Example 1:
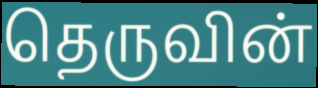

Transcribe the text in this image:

தெருவின்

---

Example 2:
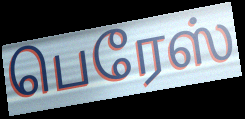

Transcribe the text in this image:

பெரேஸ்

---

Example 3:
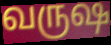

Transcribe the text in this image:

வருஷ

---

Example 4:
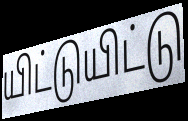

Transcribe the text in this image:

யிட்டுயிட்டு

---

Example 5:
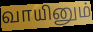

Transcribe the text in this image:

வாயினும்